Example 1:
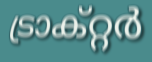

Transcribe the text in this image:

ട്രാക്റ്റർ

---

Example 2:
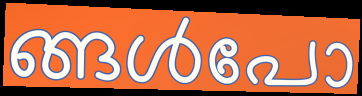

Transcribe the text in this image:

ങ്ങൾപോ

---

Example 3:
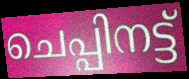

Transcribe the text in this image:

ചെപ്പിനട്ട്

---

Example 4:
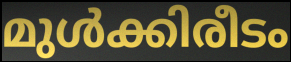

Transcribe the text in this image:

മുൾക്കിരീടം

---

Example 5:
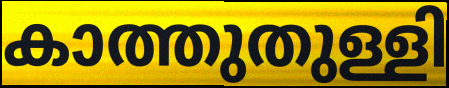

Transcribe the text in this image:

കാത്തുതുള്ളി